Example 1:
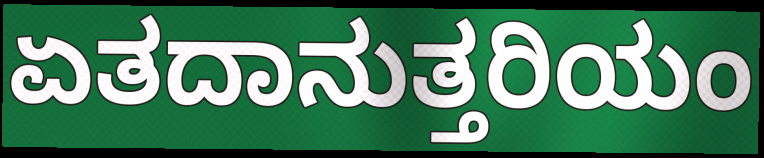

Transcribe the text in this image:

ಏತದಾನುತ್ತರಿಯಂ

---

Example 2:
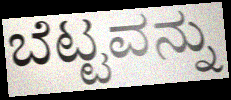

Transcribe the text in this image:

ಬೆಟ್ಟವನ್ನು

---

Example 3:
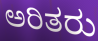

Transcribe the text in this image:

ಅರಿತರು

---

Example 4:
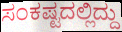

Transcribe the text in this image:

ಸಂಕಷ್ಟದಲ್ಲಿದ್ದು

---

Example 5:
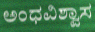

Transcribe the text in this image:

ಅಂಧವಿಶ್ವಾಸ